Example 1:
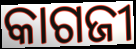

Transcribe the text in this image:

କାଗଜୀ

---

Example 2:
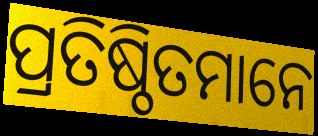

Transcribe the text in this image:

ପ୍ରତିଷ୍ଠିତମାନେ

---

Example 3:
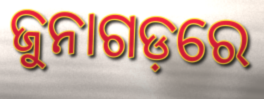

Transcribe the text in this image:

ଜୁନାଗଡ଼ରେ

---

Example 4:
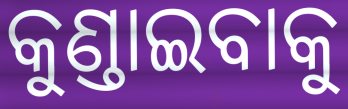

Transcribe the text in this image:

କୁଣ୍ଡାଇବାକୁ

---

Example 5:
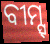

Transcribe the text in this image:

ବୀମ୍ସ୍